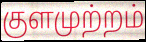
குளமுற்றம்